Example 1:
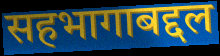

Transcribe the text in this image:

सहभागाबद्दल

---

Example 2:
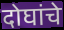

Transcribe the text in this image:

दोघांचे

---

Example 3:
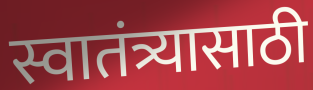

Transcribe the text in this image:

स्वातंत्र्यासाठी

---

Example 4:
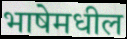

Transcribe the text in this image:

भाषेमधील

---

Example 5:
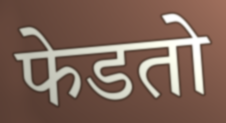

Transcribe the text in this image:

फेडतो